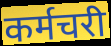
कर्मचरी